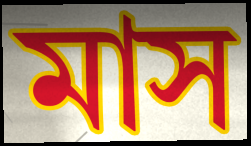
মাস